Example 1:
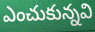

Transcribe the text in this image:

ఎంచుకున్నవి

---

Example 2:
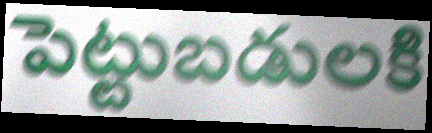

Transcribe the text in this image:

పెట్టుబడులకి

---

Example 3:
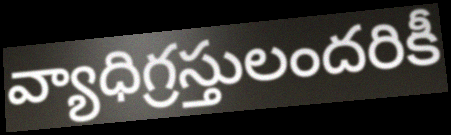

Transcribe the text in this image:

వ్యాధిగ్రస్తులందరికీ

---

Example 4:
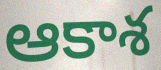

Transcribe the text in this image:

ఆకాశ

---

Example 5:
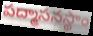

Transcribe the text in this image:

పద్మాసనస్థాం